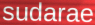
sudarae